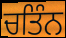
ਚਤਿੰਨ